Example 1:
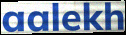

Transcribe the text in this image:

aalekh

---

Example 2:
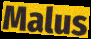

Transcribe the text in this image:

Malus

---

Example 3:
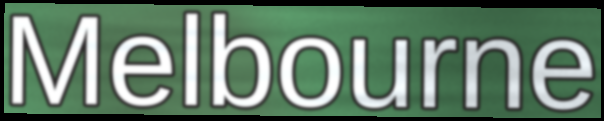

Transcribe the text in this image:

Melbourne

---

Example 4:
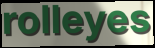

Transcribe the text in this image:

rolleyes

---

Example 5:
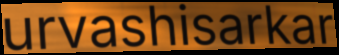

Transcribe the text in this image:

urvashisarkar